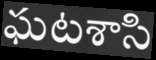
ఘటశాసి